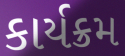
કાર્યક્રમ